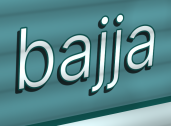
bajja